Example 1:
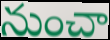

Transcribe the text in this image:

నుంచా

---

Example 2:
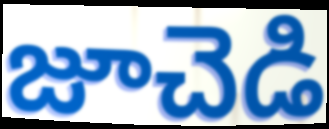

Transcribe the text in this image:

జూచెడి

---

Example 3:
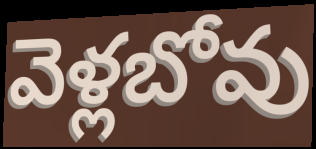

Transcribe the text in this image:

వెళ్లబోవు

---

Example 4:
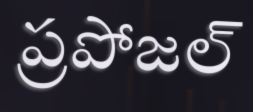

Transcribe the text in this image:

ప్రపోజల్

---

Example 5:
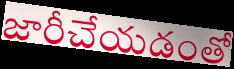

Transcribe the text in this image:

జారీచేయడంతో